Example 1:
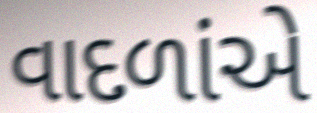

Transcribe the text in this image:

વાદળાંએ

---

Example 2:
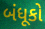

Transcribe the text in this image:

બંધૂકો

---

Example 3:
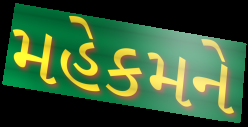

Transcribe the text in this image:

મહેકમને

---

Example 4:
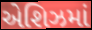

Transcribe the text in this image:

એશિઝમાં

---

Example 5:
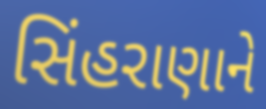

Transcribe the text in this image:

સિંહરાણાને